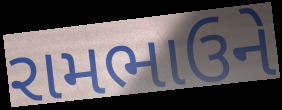
રામભાઉને